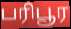
பரிபூர